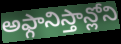
అఫ్గానిస్తాన్లోని